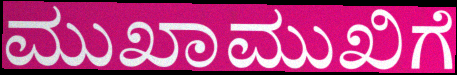
ಮುಖಾಮುಖಿಗೆ